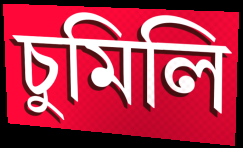
চুমিলি